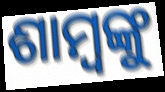
ଶାମ୍ବଙ୍କୁ